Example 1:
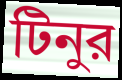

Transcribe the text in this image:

টিনুর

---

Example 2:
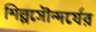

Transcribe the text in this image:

শিল্পসৌন্দর্যের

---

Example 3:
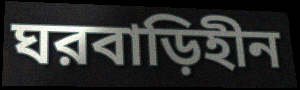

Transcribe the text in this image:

ঘরবাড়িহীন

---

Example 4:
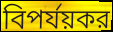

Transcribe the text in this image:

বিপর্যয়কর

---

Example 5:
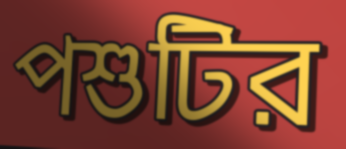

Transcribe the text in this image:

পশুটির